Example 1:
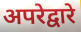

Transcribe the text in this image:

अपरेद्वारे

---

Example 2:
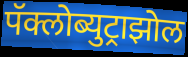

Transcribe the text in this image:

पॅक्लोब्युट्राझोल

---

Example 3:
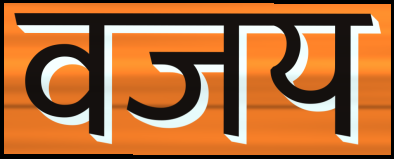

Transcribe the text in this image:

वजय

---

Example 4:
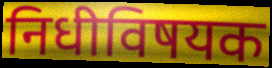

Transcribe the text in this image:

निधीविषयक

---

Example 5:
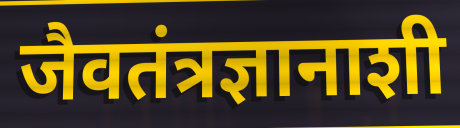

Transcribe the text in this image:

जैवतंत्रज्ञानाशी